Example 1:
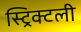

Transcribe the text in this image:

स्ट्रिक्टली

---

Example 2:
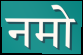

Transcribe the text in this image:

नमो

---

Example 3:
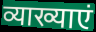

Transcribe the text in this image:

व्याख्याएं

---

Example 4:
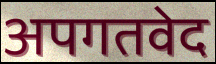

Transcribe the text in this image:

अपगतवेद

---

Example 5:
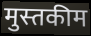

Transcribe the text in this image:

मुस्तकीम